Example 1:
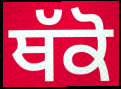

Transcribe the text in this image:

ਥੱਕੋ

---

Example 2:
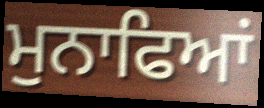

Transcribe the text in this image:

ਮੁਨਾਫਿਆਂ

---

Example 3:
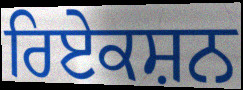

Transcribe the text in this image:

ਰਿਏਕਸ਼ਨ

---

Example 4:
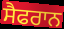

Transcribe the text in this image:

ਸੈਫਰਾਨ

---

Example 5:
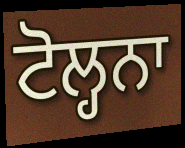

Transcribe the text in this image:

ਟੋਲ੍ਹਨਾ